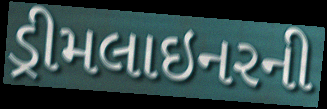
ડ્રીમલાઇનરની